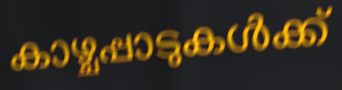
കാഴ്ചപ്പാടുകൾക്ക്